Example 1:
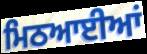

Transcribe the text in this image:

ਮਿਠਆਈਆਂ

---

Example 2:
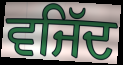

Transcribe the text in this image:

ਵਜਿੱਦ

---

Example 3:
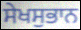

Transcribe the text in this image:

ਸੇਖਸੁਭਾਨ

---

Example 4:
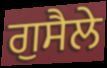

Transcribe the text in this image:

ਗੁਸੈਲੇ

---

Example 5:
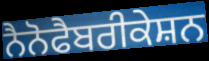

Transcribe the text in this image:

ਨੈਨੋਫੈਬਰੀਕੇਸ਼ਨ